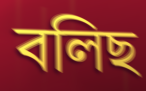
বলিছ